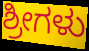
ಶ್ರೀಗಳು